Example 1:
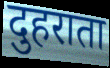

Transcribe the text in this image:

दुहराता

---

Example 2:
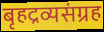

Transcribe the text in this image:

बृहद्रव्यसंग्रह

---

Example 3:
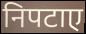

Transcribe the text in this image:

निपटाए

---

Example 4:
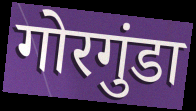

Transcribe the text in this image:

गोरगुंडा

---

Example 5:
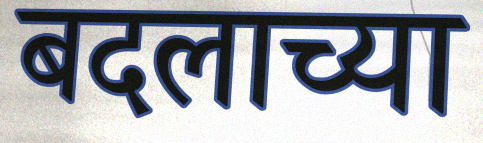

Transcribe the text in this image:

बदलाच्या